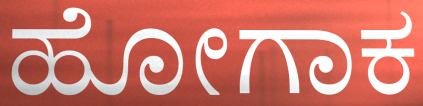
ಹೋಗಾಕ